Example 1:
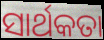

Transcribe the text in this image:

ସାର୍ଥକତା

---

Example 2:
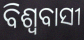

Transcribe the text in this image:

ବିଶ୍ୱବାସୀ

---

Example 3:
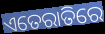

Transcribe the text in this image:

ଏତେରାତିରେ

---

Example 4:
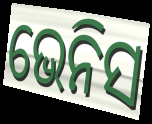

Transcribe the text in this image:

ଭେନିସ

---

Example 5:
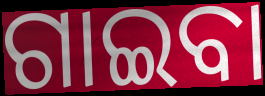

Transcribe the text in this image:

ଗାଇବା